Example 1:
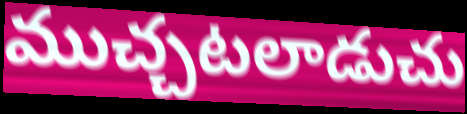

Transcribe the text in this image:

ముచ్చటలాడుచు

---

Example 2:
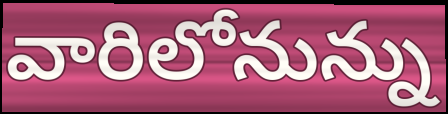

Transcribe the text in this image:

వారిలోనున్ను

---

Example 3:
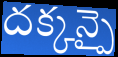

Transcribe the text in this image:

దక్కన్పై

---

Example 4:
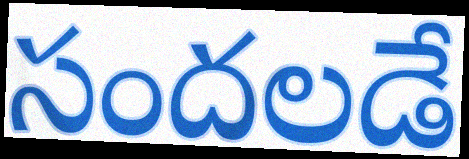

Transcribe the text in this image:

సందలడే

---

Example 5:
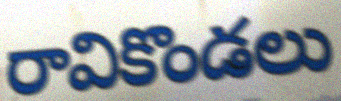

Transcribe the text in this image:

రావికొండలు